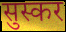
सुस्कर